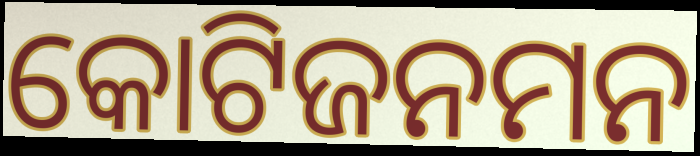
କୋଟିଜନମନ